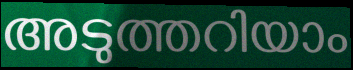
അടുത്തറിയാം